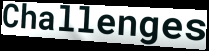
Challenges